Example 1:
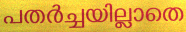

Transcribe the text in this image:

പതർച്ചയില്ലാതെ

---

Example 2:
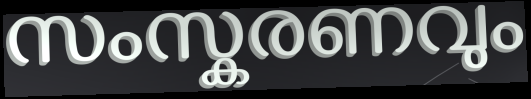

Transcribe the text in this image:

സംസ്കരണവും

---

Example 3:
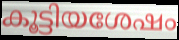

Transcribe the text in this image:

കൂട്ടിയശേഷം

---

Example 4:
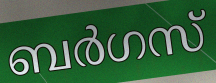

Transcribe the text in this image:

ബർഗസ്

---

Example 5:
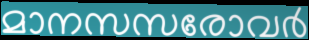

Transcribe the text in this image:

മാനസസരോവർ